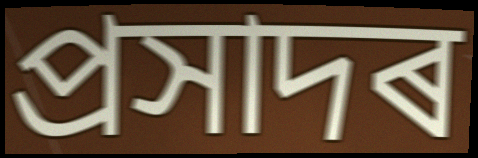
প্ৰসাদৰ